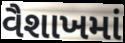
વૈશાખમાં